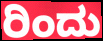
ರಿಂದು